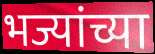
भज्यांच्या